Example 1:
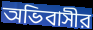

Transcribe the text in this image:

অভিবাসীর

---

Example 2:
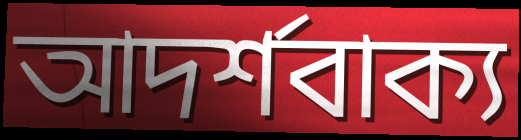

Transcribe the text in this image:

আদর্শবাক্য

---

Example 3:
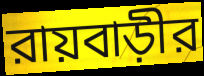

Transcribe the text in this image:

রায়বাড়ীর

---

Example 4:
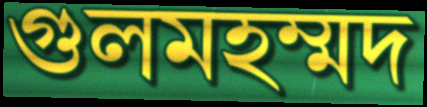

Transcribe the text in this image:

গুলমহম্মদ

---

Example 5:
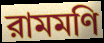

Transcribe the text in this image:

রামমণি